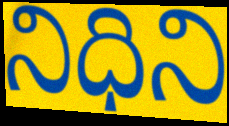
నిధిని